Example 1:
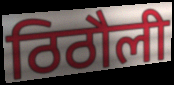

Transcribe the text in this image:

ठिठौली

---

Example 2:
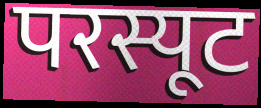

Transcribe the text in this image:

परस्यूट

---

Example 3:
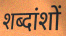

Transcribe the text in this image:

शब्दांशों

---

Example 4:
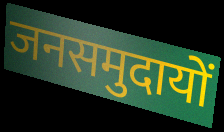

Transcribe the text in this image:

जनसमुदायों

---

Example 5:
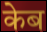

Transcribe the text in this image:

केब